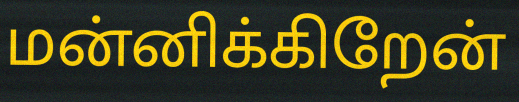
மன்னிக்கிறேன்